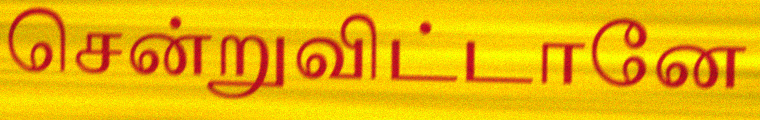
சென்றுவிட்டானே